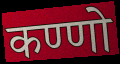
कण्णो